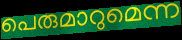
പെരുമാറുമെന്ന